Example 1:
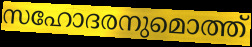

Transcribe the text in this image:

സഹോദരനുമൊത്ത്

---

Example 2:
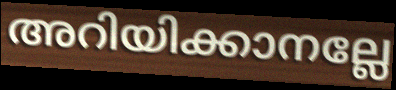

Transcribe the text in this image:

അറിയിക്കാനല്ലേ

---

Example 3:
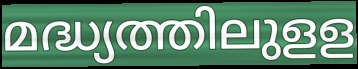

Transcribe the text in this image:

മദ്ധ്യത്തിലുളള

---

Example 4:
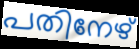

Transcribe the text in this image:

പതിനേഴ്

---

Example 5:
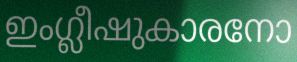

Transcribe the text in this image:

ഇംഗ്ലീഷുകാരനോ